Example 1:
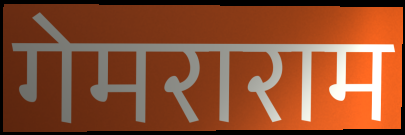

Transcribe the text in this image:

गेमराराम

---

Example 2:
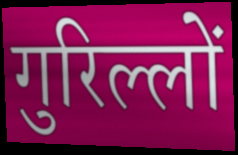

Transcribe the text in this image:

गुरिल्लों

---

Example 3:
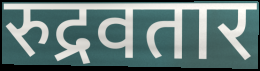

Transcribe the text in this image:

रुद्रवतार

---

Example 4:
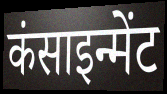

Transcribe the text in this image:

कंसाइन्मेंट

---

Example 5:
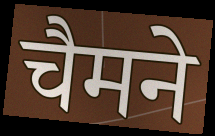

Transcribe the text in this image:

चैमने